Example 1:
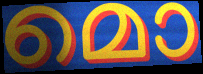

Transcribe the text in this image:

മൊ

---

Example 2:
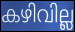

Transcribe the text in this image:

കഴിവില്ല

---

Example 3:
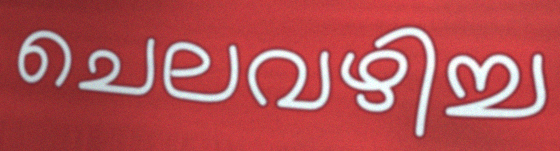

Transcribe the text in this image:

ചെലവഴിച്ച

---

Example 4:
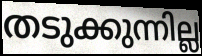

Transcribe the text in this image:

തടുക്കുന്നില്ല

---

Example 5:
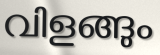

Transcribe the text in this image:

വിളങ്ങും